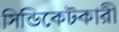
সিন্ডিকেটকারী